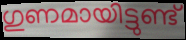
ഗുണമായിട്ടുണ്ട്